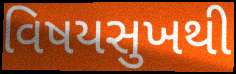
વિષયસુખથી